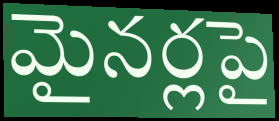
మైనర్లపై